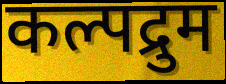
कल्पद्रुम